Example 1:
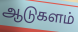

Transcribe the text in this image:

ஆடுகளம்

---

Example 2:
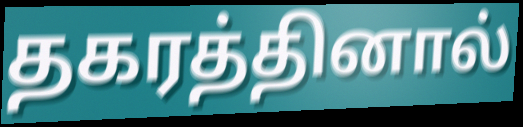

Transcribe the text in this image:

தகரத்தினால்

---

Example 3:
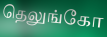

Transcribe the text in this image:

தெலுங்கோ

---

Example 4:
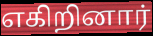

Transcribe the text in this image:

எகிறினார்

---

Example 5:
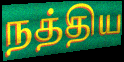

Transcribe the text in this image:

நத்திய